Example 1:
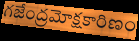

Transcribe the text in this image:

గజేంద్రమోక్షకారిణం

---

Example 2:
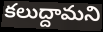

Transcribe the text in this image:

కలుద్దామని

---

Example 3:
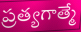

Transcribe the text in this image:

ప్రత్యగాత్మే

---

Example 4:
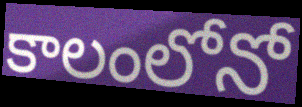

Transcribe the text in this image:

కాలంలోనో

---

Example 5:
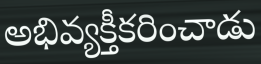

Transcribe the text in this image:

అభివ్యక్తీకరించాడు